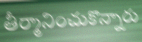
తీర్మానించుకొన్నారు